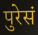
पुरेसं